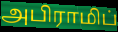
அபிராமிப்